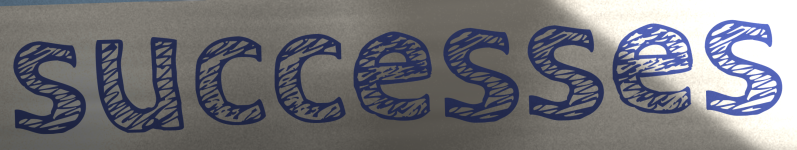
successes